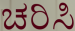
ಚರಿಸಿ